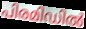
പിരമിഡിൽ